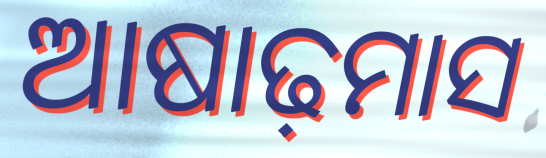
ଆଷାଢ଼ମାସ